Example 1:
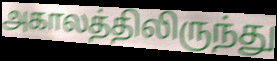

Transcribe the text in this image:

அகாலத்திலிருந்து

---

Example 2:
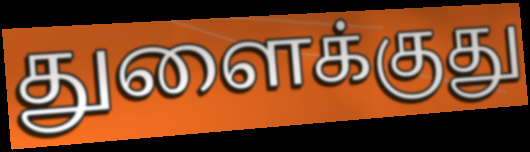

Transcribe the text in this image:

துளைக்குது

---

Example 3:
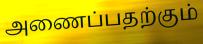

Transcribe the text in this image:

அணைப்பதற்கும்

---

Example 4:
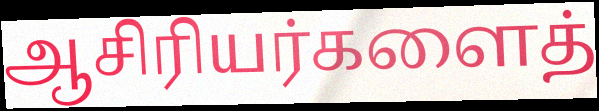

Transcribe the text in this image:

ஆசிரியர்களைத்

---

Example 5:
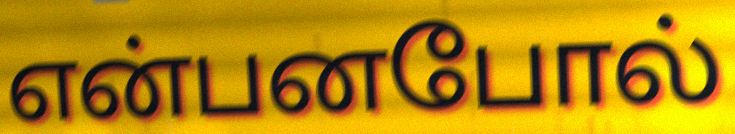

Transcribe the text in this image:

என்பனபோல்